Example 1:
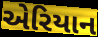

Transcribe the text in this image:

એરિયાન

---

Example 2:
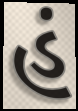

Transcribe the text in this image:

હં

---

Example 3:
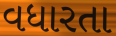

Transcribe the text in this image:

વધારતા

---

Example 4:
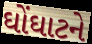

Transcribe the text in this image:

ઘોંઘાટને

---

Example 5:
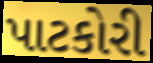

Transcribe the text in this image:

પાટકોરી